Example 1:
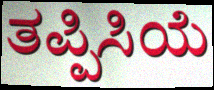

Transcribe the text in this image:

ತಪ್ಪಿಸಿಯೆ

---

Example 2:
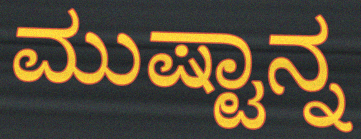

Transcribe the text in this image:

ಮುಷ್ಟಾನ್ನ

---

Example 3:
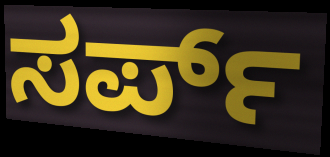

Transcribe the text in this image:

ಸರ್ಪ್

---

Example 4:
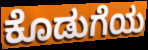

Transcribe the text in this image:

ಕೊಡುಗೆಯ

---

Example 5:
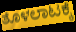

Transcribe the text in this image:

ತೊಳಲಾಟಕ್ಕೆ